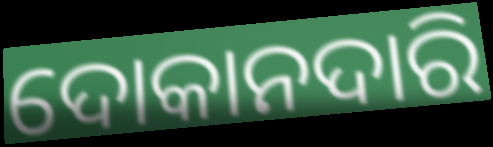
ଦୋକାନଦାରି